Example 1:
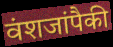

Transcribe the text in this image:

वंशजांपैकी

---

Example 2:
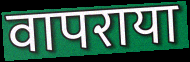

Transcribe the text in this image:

वापराया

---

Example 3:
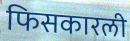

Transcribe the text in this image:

फिसकारली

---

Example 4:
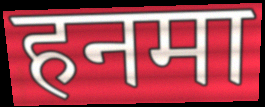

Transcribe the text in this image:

हनमा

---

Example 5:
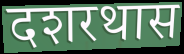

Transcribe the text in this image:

दशरथास